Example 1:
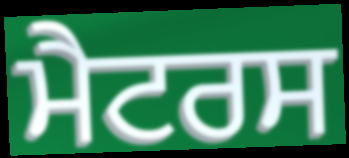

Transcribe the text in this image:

ਮੈਟਰਸ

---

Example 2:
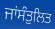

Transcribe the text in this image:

ਜਾਂਸੰਤੁਲਿਤ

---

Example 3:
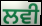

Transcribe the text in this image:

ਲਵੀ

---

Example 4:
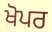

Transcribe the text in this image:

ਖੋਪਰ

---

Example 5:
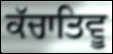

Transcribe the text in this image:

ਕੱਚਾਤਿਵੂ